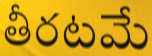
తీరటమే